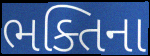
ભક્તિના